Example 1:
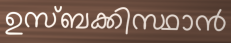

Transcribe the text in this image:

ഉസ്ബക്കിസ്ഥാൻ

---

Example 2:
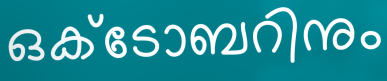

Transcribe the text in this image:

ഒക്ടോബറിനും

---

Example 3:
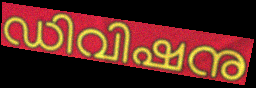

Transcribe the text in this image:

ഡിവിഷനു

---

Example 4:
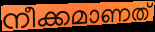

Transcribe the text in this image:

നീക്കമാണത്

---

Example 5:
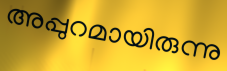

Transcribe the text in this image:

അപ്പുറമായിരുന്നു